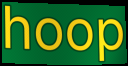
hoop